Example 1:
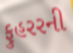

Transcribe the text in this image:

ફુહરરની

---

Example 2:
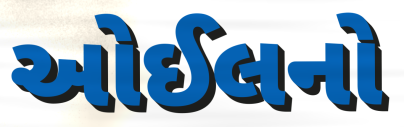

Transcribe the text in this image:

ઓઈલનો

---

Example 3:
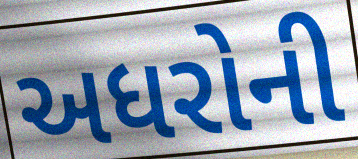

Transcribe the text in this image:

અધરોની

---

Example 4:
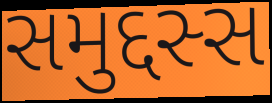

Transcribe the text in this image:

સમુદ્દસ્સ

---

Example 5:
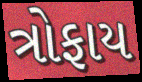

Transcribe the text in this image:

ત્રોફાય